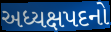
અધ્યક્ષપદનો